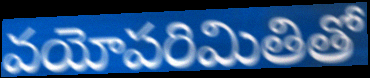
వయోపరిమితితో